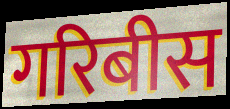
गरिबीस